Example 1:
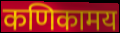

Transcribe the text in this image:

कणिकामय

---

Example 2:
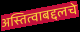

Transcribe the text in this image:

अस्तित्वाबद्दलचे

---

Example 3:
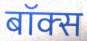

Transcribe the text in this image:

बॉक्‍स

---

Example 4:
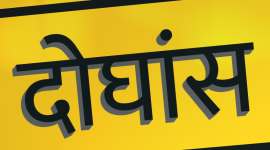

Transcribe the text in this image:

दोघांस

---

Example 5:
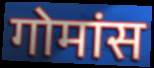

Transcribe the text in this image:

गोमांस